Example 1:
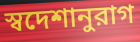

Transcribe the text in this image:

স্বদেশানুরাগ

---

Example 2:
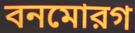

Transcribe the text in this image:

বনমোরগ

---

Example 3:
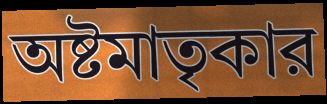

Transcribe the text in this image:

অষ্টমাতৃকার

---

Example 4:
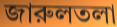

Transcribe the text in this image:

জারুলতলা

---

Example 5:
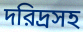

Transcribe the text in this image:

দরিদ্রসহ